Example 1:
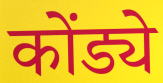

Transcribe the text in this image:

कोंड्ये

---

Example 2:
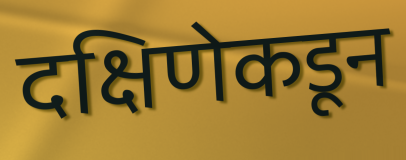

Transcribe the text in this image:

दक्षिणेकडून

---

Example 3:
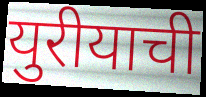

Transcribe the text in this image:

युरीयाची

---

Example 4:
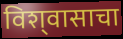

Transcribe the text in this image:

विश्वासाचा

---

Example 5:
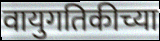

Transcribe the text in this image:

वायुगतिकीच्या